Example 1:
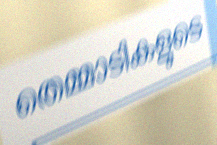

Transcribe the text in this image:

തെമ്മാടികളുടെ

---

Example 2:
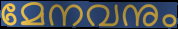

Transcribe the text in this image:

മേനവനും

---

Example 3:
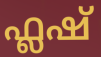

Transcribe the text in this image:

ഫ്ലഷ്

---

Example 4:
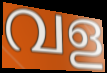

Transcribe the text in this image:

വള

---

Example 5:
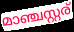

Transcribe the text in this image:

മാഞ്ചസ്റ്റര്